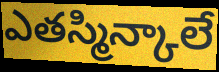
ఎతస్మిన్కాలే